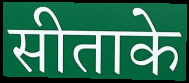
सीताके